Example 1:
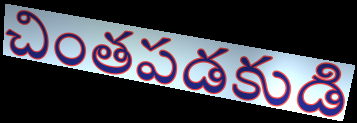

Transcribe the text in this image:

చింతపడకుడి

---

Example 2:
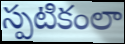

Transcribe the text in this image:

స్పటికంలా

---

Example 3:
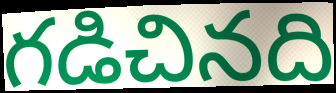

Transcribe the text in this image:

గడిచినది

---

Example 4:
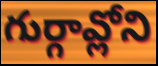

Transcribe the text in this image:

గుర్గావ్లోని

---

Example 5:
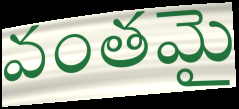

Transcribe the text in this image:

వంతమై